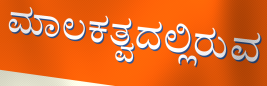
ಮಾಲಕತ್ವದಲ್ಲಿರುವ